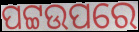
ପଟ୍ଟଉପରେ